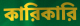
কারিকারি